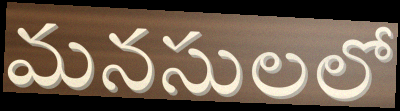
మనసులలో